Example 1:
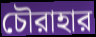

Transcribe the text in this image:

চৌরাহার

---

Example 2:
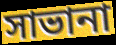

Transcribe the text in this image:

সাভানা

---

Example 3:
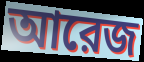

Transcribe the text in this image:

আরেজ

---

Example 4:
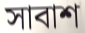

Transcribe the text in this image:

সাবাশ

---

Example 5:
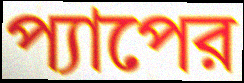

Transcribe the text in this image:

প্যাপের